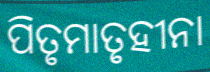
ପିତୃମାତୃହୀନା